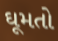
ઘૂમતો